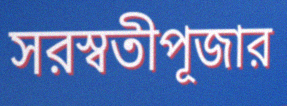
সরস্বতীপূজার